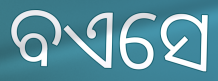
ବଏସେ